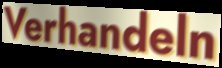
Verhandeln